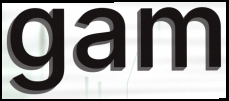
gam